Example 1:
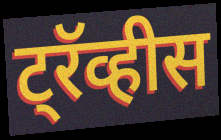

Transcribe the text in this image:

ट्रॅव्हीस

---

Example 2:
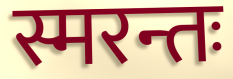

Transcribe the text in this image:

स्मरन्तः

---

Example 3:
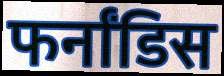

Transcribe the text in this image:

फर्नांडिस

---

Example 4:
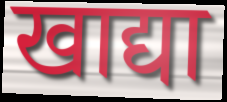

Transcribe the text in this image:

खाद्या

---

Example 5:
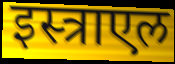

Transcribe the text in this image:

इस्त्राएल